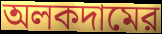
অলকদামের